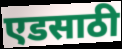
एडसाठी